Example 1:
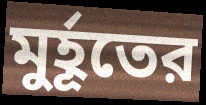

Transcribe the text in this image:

মুর্হূতের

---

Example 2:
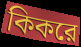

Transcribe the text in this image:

কিকরে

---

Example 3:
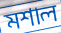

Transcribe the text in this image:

মশাল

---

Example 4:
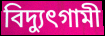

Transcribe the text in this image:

বিদ্যুৎগামী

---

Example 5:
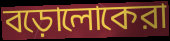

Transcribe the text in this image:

বড়োলোকেরা